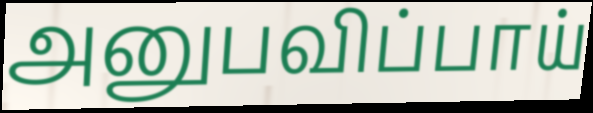
அனுபவிப்பாய்